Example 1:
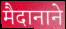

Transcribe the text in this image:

मैदानाने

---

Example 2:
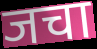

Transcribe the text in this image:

जचा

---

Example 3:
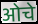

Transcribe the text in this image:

ओचे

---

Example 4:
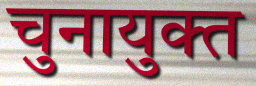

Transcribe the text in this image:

चुनायुक्त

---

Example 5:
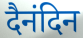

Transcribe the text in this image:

दैनंदिन